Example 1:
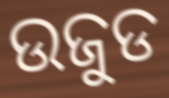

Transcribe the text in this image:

ଉଜୁଡ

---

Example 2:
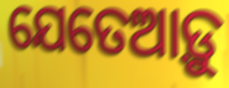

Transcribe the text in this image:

ଯେତେଆଡ଼ୁ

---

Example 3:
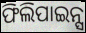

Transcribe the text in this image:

ଫିଲିପାଇନ୍ସ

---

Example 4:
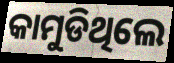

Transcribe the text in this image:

କାମୁଡିଥିଲେ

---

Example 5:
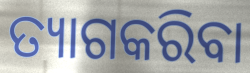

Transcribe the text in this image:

ତ୍ୟାଗକରିବା